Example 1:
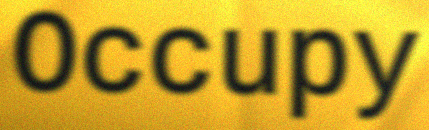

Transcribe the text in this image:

Occupy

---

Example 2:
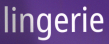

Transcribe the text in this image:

lingerie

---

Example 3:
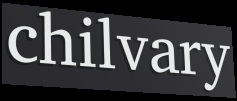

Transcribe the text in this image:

chilvary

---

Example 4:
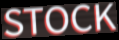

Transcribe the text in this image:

STOCK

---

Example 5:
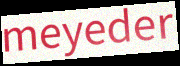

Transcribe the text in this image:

meyeder